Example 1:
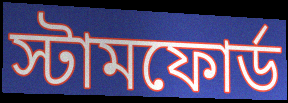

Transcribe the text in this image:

স্টামফোর্ড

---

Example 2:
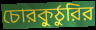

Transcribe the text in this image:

চোরকুঠুরির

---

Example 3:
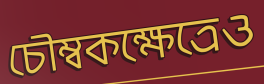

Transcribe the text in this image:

চৌম্বকক্ষেত্রেও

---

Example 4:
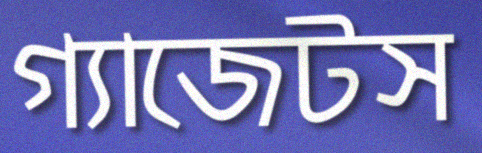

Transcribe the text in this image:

গ্যাজেটস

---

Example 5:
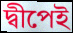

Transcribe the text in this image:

দ্বীপেই